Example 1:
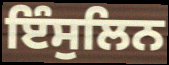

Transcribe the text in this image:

ਇੰਸੁਲਿਨ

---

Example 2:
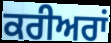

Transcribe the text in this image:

ਕਰੀਅਰਾਂ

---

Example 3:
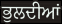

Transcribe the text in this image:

ਭੁਲਦੀਆਂ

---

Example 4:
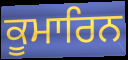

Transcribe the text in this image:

ਕੂਮਾਰਿਨ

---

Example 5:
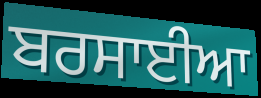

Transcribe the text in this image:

ਬਰਸਾਈਆ